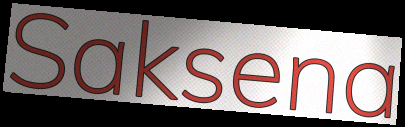
Saksena